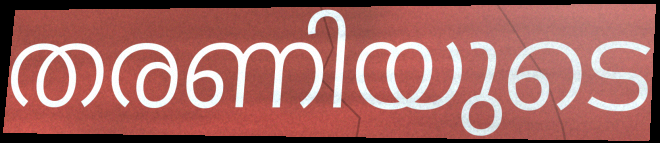
തരണിയുടെ